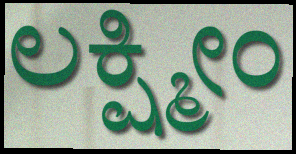
ಲಕ್ಷ್ಮೀಂ